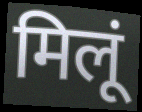
मिलूं